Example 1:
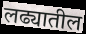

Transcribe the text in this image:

लढ्यातील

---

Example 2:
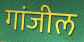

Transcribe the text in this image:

गांजील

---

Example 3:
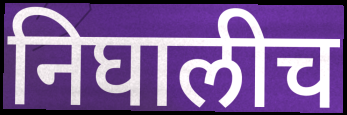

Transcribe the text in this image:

निघालीच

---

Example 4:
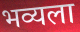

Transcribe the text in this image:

भव्यला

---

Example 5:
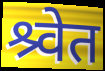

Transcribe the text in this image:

श्र्वेत